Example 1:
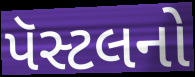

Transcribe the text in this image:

પૅસ્ટલનો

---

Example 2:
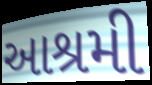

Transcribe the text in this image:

આશ્રમી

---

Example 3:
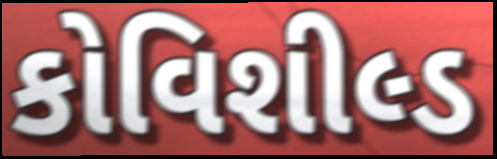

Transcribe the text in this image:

કોવિશીલ્ડ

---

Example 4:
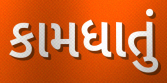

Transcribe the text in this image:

કામધાતું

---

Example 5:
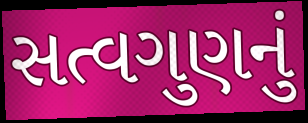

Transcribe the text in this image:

સત્વગુણનું